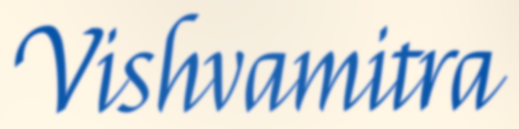
Vishvamitra